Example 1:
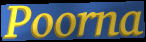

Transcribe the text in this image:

Poorna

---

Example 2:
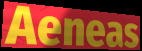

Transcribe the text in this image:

Aeneas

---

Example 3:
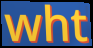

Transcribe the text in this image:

wht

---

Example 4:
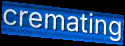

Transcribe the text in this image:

cremating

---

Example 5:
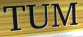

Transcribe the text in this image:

TUM